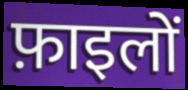
फ़ाइलों